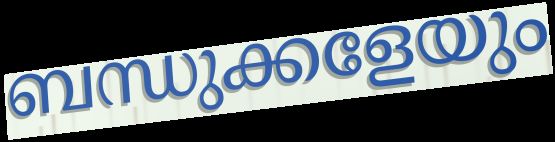
ബന്ധുക്കളേയും